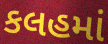
કલહમાં